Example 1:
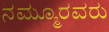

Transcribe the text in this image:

ನಮ್ಮೂರವರು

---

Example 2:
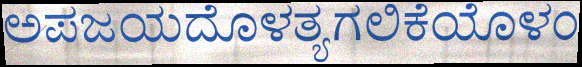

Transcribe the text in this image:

ಅಪಜಯದೊಳತ್ಯಗಲಿಕೆಯೊಳಂ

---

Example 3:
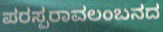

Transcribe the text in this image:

ಪರಸ್ಪರಾವಲಂಬನದ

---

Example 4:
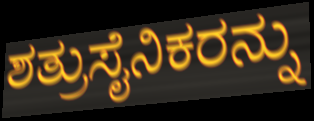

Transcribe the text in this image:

ಶತ್ರುಸೈನಿಕರನ್ನು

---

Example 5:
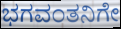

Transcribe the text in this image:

ಭಗವಂತನಿಗೇ